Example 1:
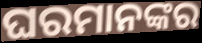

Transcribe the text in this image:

ଘରମାନଙ୍କର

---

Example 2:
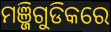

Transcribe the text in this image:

ମଞ୍ଜିଗୁଡିକରେ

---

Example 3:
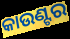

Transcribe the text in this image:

କାଉଣ୍ଟର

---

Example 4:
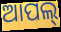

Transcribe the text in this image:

ଆପଲ୍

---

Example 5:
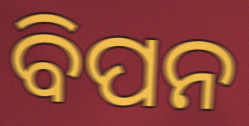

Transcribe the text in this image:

ବିପନ